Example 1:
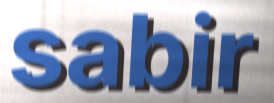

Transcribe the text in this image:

sabir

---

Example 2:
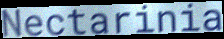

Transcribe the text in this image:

Nectarinia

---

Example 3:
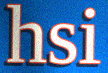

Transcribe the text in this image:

hsi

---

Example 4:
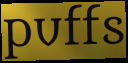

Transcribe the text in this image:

puffs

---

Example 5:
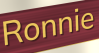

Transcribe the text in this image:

Ronnie